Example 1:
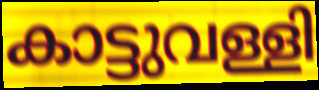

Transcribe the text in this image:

കാട്ടുവള്ളി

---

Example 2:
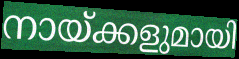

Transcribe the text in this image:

നായ്ക്കളുമായി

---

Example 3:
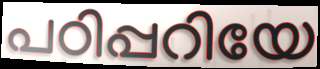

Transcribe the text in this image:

പഠിപ്പറിയേ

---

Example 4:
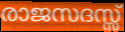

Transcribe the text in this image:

രാജസദസ്സ്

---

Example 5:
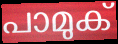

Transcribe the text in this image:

പാമുക്